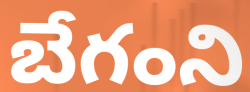
బేగంని